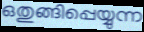
ഒതുങ്ങിപ്പെയ്യുന്ന